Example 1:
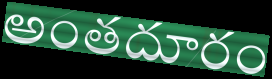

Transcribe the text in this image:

అంతదూరం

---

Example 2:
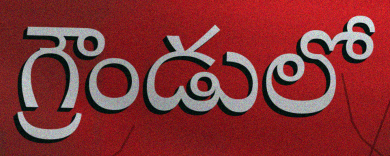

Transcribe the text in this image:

గ్రౌండులో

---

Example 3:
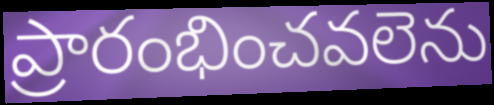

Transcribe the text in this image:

ప్రారంభించవలెను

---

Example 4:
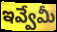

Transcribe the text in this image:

ఇవ్వేమీ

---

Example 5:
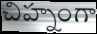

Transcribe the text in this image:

చిహ్నంగా